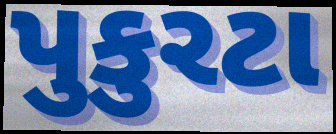
પુકુરટા